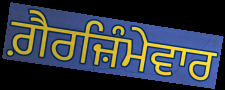
ਗ਼ੈਰਜ਼ਿੰਮੇਵਾਰ